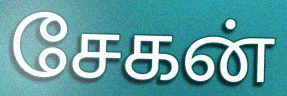
சேகன்